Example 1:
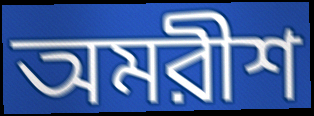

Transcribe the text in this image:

অমরীশ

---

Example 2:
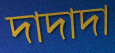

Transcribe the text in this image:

দাদাদা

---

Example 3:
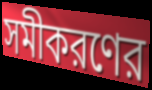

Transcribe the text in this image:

সমীকরণের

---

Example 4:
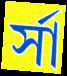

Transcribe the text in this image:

র্সা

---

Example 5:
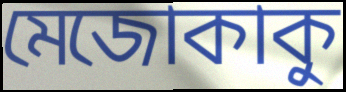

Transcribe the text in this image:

মেজোকাকু